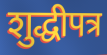
शुद्धीपत्र